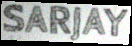
SARJAY